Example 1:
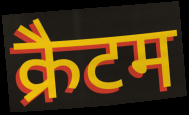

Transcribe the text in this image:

क्रैटम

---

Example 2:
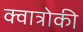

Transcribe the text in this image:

क्वात्रोकी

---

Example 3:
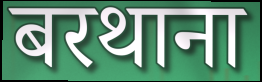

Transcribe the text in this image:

बरथाना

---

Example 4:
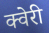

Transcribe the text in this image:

क्वेरी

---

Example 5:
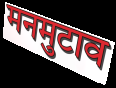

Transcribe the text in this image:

मनमुटाव